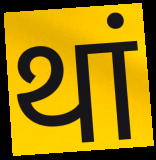
थां